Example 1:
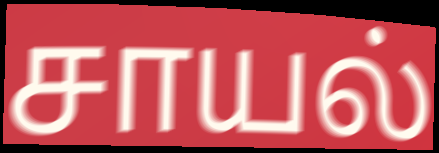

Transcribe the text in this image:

சாயல்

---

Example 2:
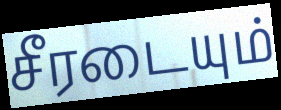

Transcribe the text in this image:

சீரடையும்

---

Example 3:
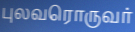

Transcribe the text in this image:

புலவரொருவர்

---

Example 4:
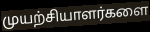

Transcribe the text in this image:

முயற்சியாளர்களை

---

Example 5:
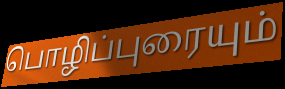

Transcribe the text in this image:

பொழிப்புரையும்